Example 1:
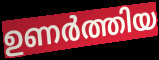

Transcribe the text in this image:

ഉണർത്തിയ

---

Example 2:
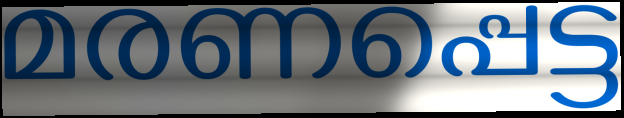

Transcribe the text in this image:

മരണപ്പെട്ട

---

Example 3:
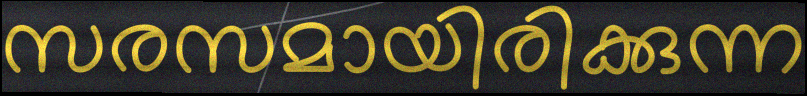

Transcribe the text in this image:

സരസമായിരിക്കുന്ന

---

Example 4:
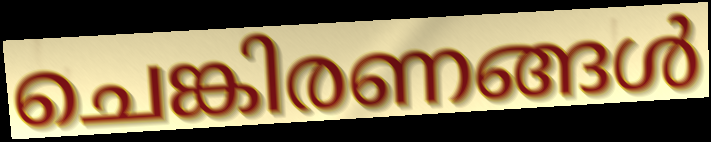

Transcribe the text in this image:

ചെങ്കിരണങ്ങൾ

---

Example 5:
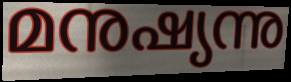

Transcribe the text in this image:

മനുഷ്യന്നു